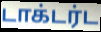
டாக்டர்ட